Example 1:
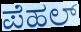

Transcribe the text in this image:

ಪೆಹಲ್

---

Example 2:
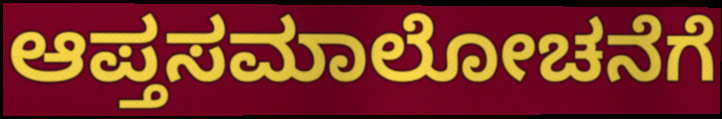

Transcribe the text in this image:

ಆಪ್ತಸಮಾಲೋಚನೆಗೆ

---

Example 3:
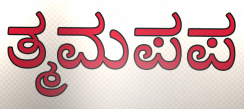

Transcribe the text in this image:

ತ್ಮಮಪಪ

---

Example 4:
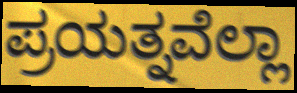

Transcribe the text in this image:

ಪ್ರಯತ್ನವೆಲ್ಲಾ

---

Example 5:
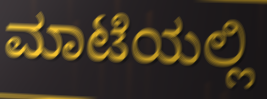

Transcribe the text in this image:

ಮಾಟೆಯಲ್ಲಿ